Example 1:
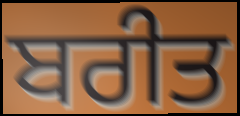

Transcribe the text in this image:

ਬਰੀਤ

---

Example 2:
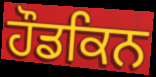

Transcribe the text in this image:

ਹੌਡਕਿਨ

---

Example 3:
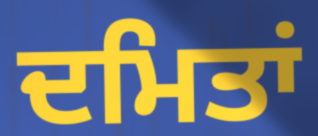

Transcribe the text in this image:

ਦਮਿਤਾਂ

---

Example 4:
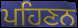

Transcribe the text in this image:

ਪਹਿਣਨ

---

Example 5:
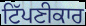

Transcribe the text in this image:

ਟਿੱਪਣੀਕਾਰ